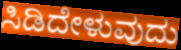
ಸಿಡಿದೇಳುವುದು